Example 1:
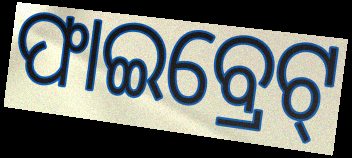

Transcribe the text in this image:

ଫାଇବ୍ରେଟ୍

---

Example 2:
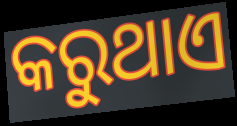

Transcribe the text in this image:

କରୁଥାଏ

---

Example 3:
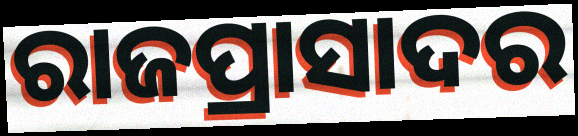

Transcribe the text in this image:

ରାଜପ୍ରାସାଦର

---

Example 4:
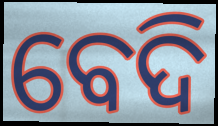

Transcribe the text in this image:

ବେଦି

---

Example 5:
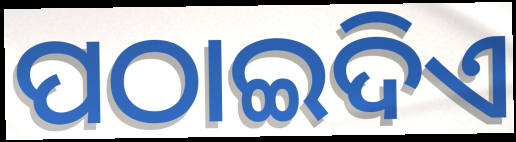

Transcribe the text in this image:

ପଠାଇଦିଏ